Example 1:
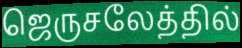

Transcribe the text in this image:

ஜெருசலேத்தில்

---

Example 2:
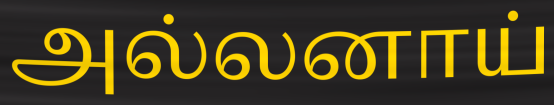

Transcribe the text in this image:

அல்லனாய்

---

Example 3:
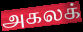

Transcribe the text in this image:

அகலக்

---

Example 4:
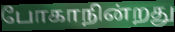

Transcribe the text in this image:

போகாநின்றது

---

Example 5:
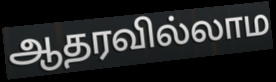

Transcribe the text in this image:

ஆதரவில்லாம